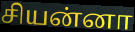
சியன்னா